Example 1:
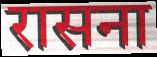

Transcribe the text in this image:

रासना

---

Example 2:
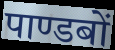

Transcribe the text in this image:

पाण्डबों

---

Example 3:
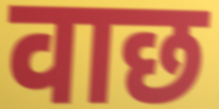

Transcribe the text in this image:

वाछ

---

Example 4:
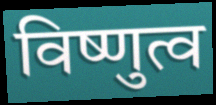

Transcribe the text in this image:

विष्णुत्व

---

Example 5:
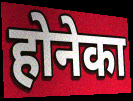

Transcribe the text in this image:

होनेका